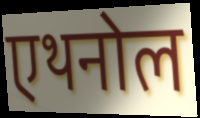
एथनोल